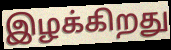
இழக்கிறது